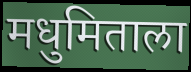
मधुमिताला